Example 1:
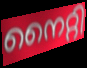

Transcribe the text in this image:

നൈറ്റി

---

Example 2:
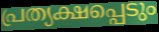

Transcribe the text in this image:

പ്രത്യക്ഷപ്പെടും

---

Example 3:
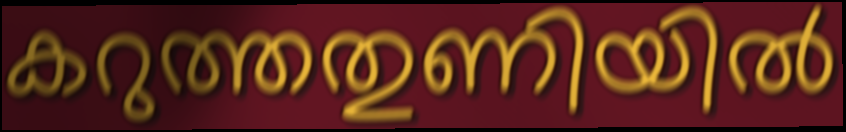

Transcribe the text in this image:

കറുത്തതുണിയിൽ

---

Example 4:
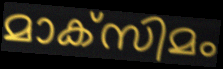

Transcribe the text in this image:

മാക്‌സിമം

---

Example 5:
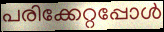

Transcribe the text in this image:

പരിക്കേറ്റപ്പോൾ